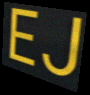
EJ